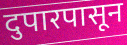
दुपारपासून